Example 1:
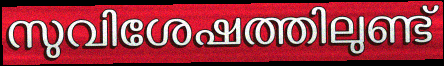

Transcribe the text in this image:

സുവിശേഷത്തിലുണ്ട്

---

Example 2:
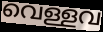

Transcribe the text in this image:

വെള്ളവ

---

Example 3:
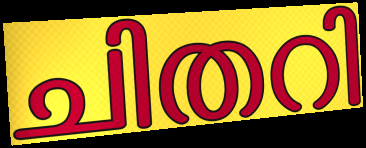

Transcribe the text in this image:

ചിതറി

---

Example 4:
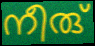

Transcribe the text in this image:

നീരു്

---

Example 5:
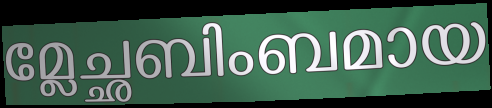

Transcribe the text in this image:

മ്ലേച്ഛബിംബമായ